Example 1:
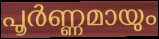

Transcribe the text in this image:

പൂർണ്ണമായും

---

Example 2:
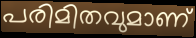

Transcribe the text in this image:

പരിമിതവുമാണ്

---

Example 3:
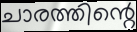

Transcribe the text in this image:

ചാരത്തിന്റെ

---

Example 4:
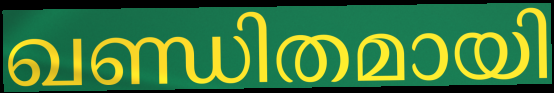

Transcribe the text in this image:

ഖണ്ഡിതമായി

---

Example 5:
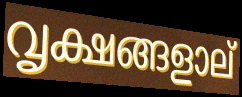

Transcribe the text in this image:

വൃക്ഷങ്ങളാല്